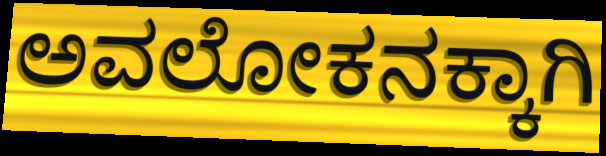
ಅವಲೋಕನಕ್ಕಾಗಿ